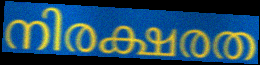
നിരക്ഷരത